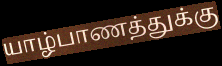
யாழ்பாணத்துக்கு